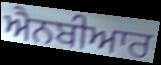
ਐਨਬੀਆਰ